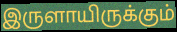
இருளாயிருக்கும்